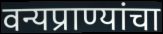
वन्यप्राण्यांचा